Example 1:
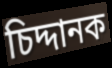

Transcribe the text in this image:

চিদ্দানক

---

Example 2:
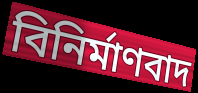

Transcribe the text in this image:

বিনিৰ্মাণবাদ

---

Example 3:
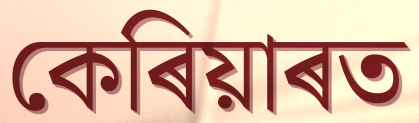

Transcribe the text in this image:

কেৰিয়াৰত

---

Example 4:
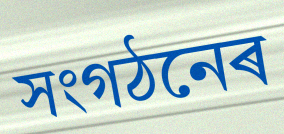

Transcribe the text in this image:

সংগঠনেৰ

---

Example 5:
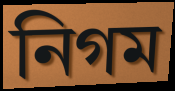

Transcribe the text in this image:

নিগম